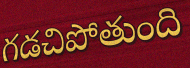
గడచిపోతుంది